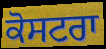
ਕੋਸਟਰਾ